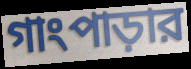
গাংপাড়ার